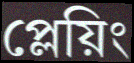
প্লেয়িং